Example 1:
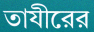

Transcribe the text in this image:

তাযীরের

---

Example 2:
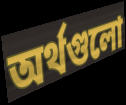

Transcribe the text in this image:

অর্থগুলো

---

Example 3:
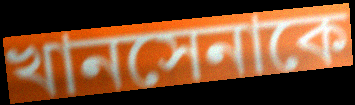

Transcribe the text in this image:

খানসেনাকে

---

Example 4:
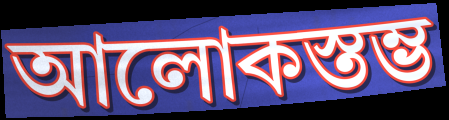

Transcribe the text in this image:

আলোকস্তম্ভ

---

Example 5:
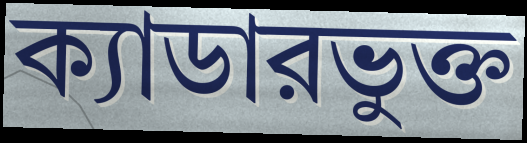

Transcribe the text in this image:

ক্যাডারভুক্ত